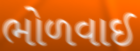
ભોળવાઈ